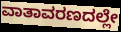
ವಾತಾವರಣದಲ್ಲೇ